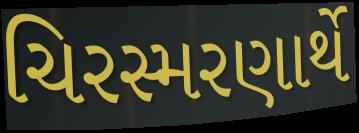
ચિરસ્મરણાર્થે